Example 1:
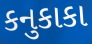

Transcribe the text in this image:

કનુકાકા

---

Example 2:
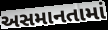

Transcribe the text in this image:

અસમાનતામાં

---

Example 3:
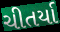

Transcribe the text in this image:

ચીતર્યા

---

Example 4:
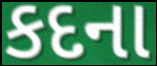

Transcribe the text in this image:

કદના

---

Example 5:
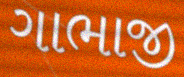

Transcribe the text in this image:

ગાભાજી